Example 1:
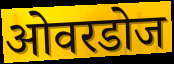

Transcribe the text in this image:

ओवरडोज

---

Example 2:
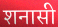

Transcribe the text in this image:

शनासी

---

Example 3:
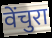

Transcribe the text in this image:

वेंचुरा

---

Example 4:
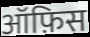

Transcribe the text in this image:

ऑफ़िस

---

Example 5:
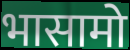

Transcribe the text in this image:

भासामो